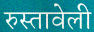
रुस्तावेली